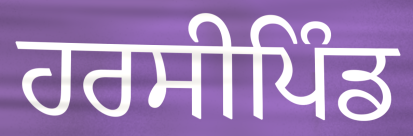
ਹਰਸੀਪਿੰਡ